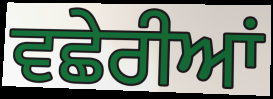
ਵਛੇਰੀਆਂ